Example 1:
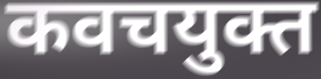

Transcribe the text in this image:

कवचयुक्त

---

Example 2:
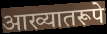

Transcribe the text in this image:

आख्यातरूपे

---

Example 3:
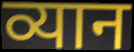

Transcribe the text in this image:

व्यान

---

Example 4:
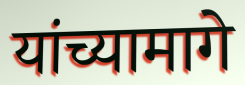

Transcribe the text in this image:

यांच्यामागे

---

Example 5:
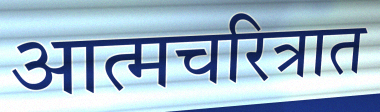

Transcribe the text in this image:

आत्मचरित्रात